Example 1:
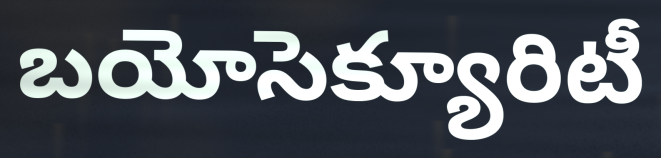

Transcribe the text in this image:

బయోసెక్యూరిటీ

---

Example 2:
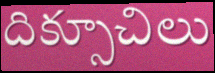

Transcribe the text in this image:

దిక్సూచిలు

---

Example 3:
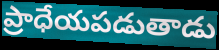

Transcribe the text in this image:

ప్రాధేయపడుతాడు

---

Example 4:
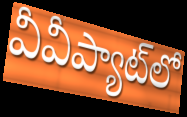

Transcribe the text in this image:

వీవీప్యాట్‌లో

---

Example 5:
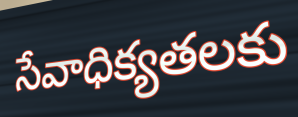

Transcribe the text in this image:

సేవాధిక్యతలకు